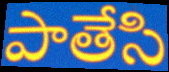
పాతేసి